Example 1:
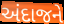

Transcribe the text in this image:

અંદાજને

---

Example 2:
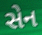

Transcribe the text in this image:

સેન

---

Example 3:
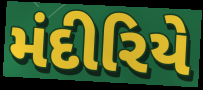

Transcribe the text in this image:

મંદીરિયે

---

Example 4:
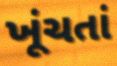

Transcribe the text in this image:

ખૂંચતાં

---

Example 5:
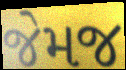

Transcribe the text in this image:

જેમજ